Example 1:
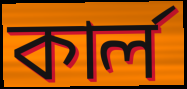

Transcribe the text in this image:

কার্ল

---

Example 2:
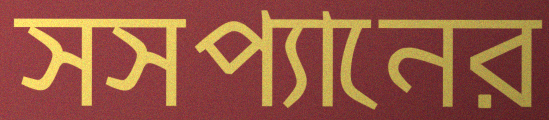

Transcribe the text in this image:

সসপ্যানের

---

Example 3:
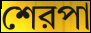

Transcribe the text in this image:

শেরপা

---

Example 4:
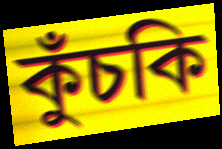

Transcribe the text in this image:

কুঁচকি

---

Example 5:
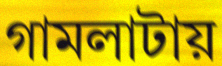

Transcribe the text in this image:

গামলাটায়